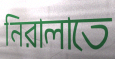
নিরালাতে